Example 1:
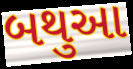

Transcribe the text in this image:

બથુઆ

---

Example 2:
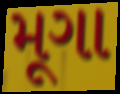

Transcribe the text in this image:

મૂગા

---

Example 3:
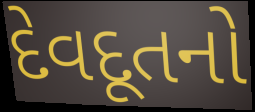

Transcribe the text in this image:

દેવદૂતનો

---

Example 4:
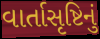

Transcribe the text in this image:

વાર્તાસૃષ્ટિનું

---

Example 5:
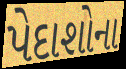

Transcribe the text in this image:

પેદાશોના